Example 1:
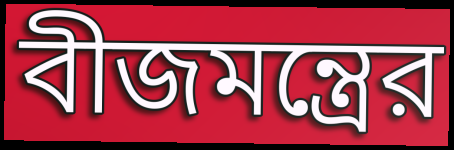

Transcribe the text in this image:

বীজমন্ত্রের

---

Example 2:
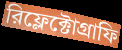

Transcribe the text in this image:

রিফ্লেক্টোগ্রাফি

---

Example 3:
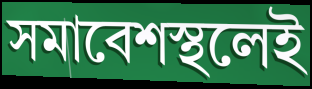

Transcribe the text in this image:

সমাবেশস্থলেই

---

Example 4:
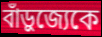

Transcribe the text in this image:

বাঁড়ুজ্যেকে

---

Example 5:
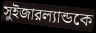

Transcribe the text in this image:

সুইজারল্যান্ডকে